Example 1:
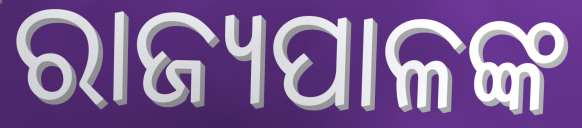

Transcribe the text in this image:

ରାଜ୍ୟପାଳଙ୍କ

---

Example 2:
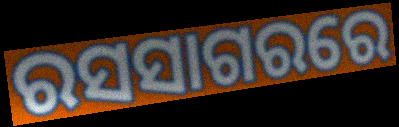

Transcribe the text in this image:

ରସସାଗରରେ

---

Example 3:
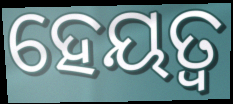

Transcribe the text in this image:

ହେୟତ୍ୱ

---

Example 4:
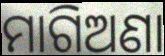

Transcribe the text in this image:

ମାଗିଅଣା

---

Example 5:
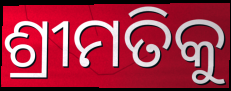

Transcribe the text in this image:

ଶ୍ରୀମତିକୁ